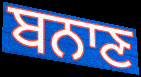
ਬਨਾਣ